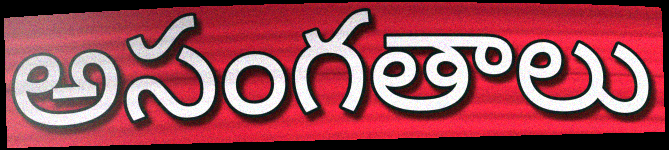
అసంగతాలు